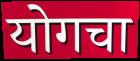
योगचा